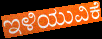
ಇಳಿಯುವಿಕೆ